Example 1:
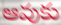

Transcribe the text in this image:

ఆవుకు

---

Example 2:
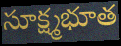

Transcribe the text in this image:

సూక్ష్మభూత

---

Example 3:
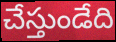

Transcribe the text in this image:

చేస్తుండేది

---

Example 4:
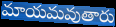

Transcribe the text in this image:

మాయమవుతారు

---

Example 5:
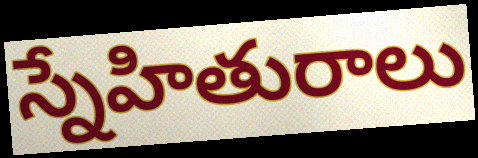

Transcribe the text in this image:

స్నేహితురాలు